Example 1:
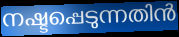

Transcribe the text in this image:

നഷ്ടപ്പെടുന്നതിൻ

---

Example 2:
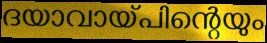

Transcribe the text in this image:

ദയാവായ്പിന്റെയും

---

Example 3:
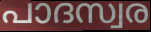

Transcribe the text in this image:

പാദസ്വര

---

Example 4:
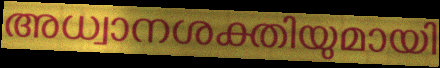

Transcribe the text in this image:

അധ്വാനശക്തിയുമായി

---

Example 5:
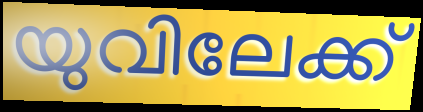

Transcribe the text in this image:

യുവിലേക്ക്